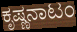
ಕೃಷ್ಣನಾಟಂ